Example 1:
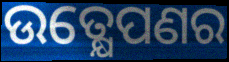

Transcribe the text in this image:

ଉତ୍କ୍ଷେପଣର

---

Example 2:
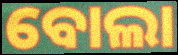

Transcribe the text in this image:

ବୋଲା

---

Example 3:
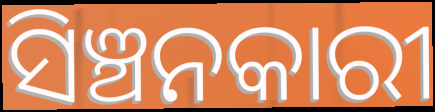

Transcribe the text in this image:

ସିଞ୍ଚନକାରୀ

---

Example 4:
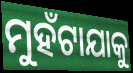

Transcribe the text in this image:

ମୁହଁଟାଯାକୁ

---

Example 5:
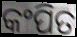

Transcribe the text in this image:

କଂପିତ